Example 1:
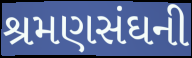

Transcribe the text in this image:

શ્રમણસંઘની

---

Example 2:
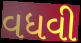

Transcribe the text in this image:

વધવી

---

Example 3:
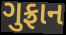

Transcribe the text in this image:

ગુફ્રાન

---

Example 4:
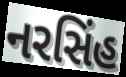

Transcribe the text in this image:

નરસિંહ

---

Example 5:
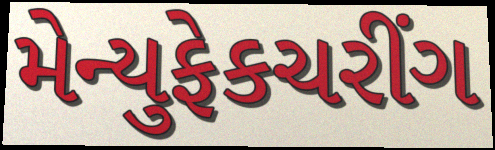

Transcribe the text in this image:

મેન્યુફેકચરીંગ